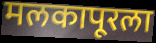
मलकापूरला